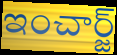
ఇంచార్జ్